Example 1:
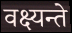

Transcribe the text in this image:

वक्ष्यन्ते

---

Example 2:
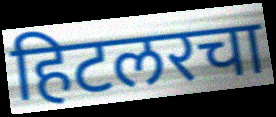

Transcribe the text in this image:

हिटलरचा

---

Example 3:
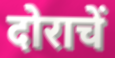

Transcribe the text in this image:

दोराचें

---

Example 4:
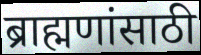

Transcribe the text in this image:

ब्राह्मणांसाठी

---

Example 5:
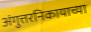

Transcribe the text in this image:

अंगुत्तरनिकायाच्या